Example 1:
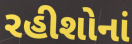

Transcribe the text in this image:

રહીશોનાં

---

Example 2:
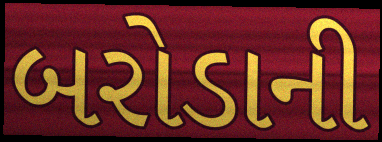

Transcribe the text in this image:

બરોડાની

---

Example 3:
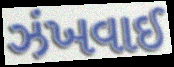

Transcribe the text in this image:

ઝંખવાઈ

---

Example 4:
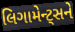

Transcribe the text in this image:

લિગામેન્ટ્સને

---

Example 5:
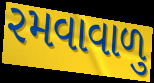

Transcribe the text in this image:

રમવાવાળુ